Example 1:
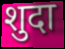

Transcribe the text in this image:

शुदा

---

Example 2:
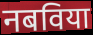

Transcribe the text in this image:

नबविया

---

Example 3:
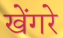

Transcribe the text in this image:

खेंगरे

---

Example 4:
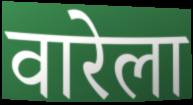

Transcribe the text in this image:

वारेला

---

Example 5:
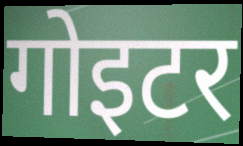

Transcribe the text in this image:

गोइटर